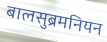
बालसुब्रमनियन